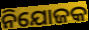
ନିଯୋଜକ